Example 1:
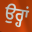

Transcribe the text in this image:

ਉਰ੍ਹਾਂ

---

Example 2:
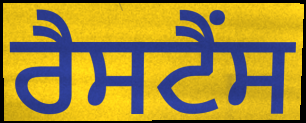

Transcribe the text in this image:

ਰੈਸਟੈਂਸ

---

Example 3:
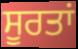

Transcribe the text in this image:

ਸੂਰਤਾਂ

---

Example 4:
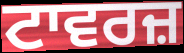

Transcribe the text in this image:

ਟਾਵਰਜ਼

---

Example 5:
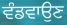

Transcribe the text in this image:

ਵੰਡਵਾਉਣ